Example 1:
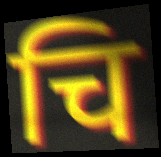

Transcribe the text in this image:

चि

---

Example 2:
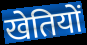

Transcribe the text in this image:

खेतियों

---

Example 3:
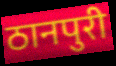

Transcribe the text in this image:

ठानपुरी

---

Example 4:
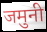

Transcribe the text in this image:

जमुनी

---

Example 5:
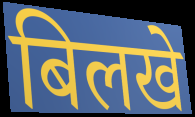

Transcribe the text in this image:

बिलखे